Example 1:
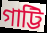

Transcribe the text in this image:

গাট্টি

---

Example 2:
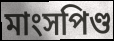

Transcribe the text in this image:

মাংসপিণ্ড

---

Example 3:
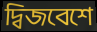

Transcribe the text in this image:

দ্বিজবেশে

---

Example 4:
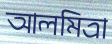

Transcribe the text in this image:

আলমিত্রা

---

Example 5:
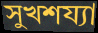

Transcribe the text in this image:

সুখশয্যা